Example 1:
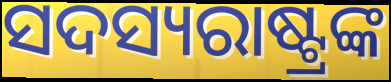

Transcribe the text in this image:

ସଦସ୍ୟରାଷ୍ଟ୍ରଙ୍କ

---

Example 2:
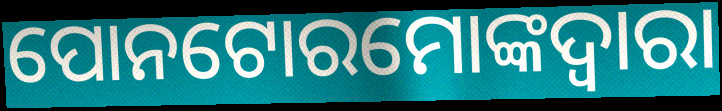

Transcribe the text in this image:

ପୋନଟୋରମୋଙ୍କଦ୍ୱାରା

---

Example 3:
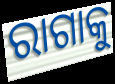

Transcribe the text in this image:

ରାଗାକୁ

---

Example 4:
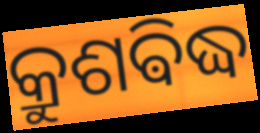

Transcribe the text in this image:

କ୍ରୁଶଵିଦ୍ଧ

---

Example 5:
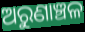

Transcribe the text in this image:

ଅରୁଣାଞ୍ଚଳ